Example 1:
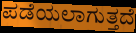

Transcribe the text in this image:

ಪಡೆಯಲಾಗುತ್ತದೆ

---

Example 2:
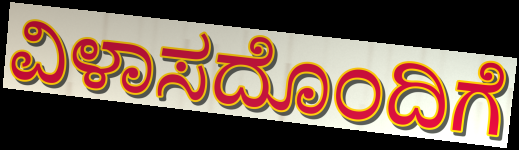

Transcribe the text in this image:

ವಿಳಾಸದೊಂದಿಗೆ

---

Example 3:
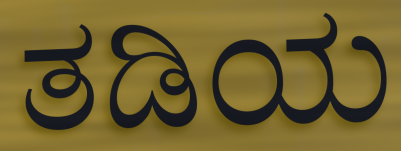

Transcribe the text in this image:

ತಡಿಯ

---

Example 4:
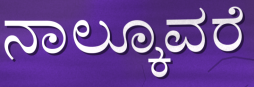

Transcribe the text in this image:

ನಾಲ್ಕೂವರೆ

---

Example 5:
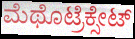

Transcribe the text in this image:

ಮೆಥೊಟ್ರೆಕ್ಸೇಟ್